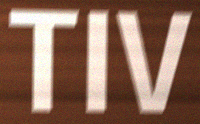
TIV